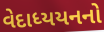
વેદાધ્યયનનો